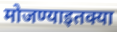
मोजण्याइतक्या